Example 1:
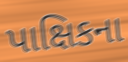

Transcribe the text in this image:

પાક્ષિકના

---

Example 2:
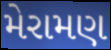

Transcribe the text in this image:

મેરામણ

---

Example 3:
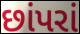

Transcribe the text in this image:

છાંપરાં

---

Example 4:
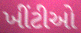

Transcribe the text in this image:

ખીંટીઓ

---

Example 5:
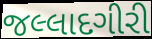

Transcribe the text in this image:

જલ્લાદગીરી